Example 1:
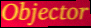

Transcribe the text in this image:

Objector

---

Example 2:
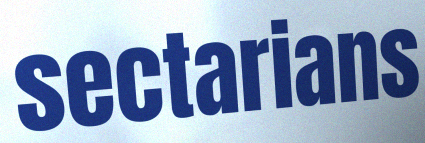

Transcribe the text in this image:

sectarians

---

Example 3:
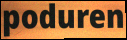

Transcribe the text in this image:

poduren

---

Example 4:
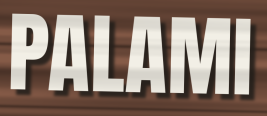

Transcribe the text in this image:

PALAMI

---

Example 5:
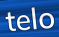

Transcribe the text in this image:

telo